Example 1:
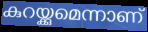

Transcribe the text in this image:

കുറയ്ക്കുമെന്നാണ്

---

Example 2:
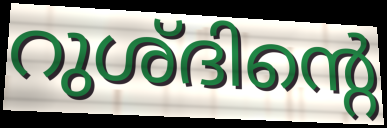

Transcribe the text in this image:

റുശ്ദിന്റെ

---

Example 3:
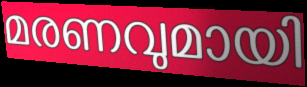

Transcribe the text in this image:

മരണവുമായി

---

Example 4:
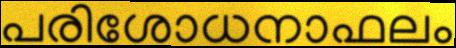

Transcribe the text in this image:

പരിശോധനാഫലം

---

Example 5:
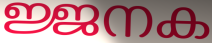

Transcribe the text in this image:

ജ്ജനക